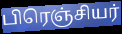
பிரெஞ்சியர்